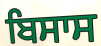
ਬਿਸਾਸ